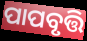
ପାପବୃତ୍ତି